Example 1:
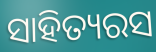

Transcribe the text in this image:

ସାହିତ୍ୟରସ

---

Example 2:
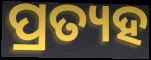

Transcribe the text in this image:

ପ୍ରତ୍ୟହ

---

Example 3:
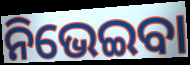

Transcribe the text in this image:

ନିଭେଇବା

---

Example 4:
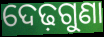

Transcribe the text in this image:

ଦେଢ଼ଗୁଣା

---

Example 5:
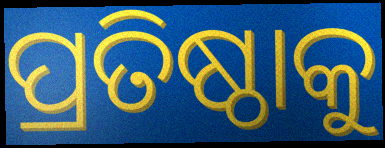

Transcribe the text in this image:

ପ୍ରତିଷ୍ଠାକୁ